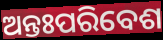
ଅନ୍ତଃପରିବେଶ